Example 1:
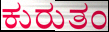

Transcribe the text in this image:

ಕುರುತಂ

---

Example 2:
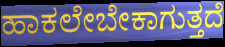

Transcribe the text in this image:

ಹಾಕಲೇಬೇಕಾಗುತ್ತದೆ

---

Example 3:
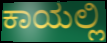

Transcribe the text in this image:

ಕಾಯಲ್ಲಿ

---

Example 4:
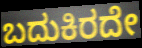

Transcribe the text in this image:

ಬದುಕಿರದೇ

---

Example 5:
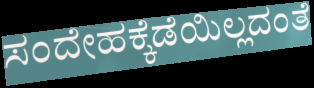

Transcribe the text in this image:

ಸಂದೇಹಕ್ಕೆಡೆಯಿಲ್ಲದಂತೆ